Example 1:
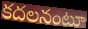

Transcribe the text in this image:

కదలనంటూ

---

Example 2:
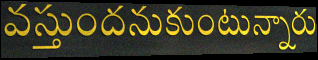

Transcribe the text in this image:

వస్తుందనుకుంటున్నారు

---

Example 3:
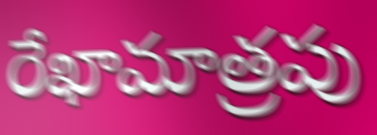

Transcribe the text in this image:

రేఖామాత్రపు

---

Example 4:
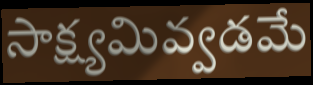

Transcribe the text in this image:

సాక్ష్యమివ్వడమే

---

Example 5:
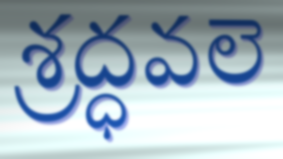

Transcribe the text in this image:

శ్రద్ధవలె